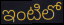
ఇంటిలో